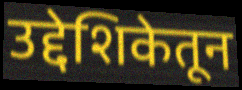
उद्देशिकेतून